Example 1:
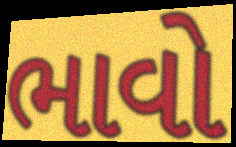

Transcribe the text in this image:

ભાવો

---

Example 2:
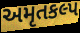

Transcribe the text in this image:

અમૃતકલ્પ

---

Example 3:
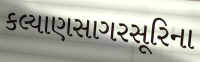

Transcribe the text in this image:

કલ્યાણસાગરસૂરિના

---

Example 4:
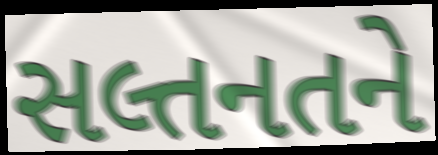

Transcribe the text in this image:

સલ્તનતને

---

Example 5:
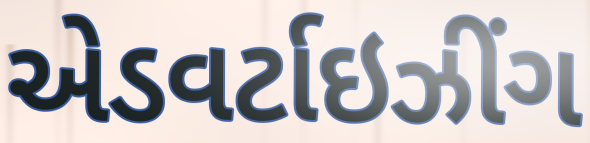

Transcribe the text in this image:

એડવર્ટાઇઝીંગ